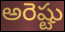
అరెష్టు